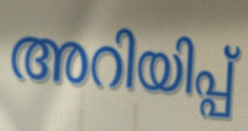
അറിയിപ്പ്